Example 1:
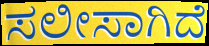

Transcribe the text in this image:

ಸಲೀಸಾಗಿದೆ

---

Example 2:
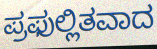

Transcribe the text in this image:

ಪ್ರಫುಲ್ಲಿತವಾದ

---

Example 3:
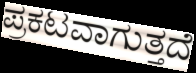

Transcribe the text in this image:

ಪ್ರಕಟವಾಗುತ್ತದೆ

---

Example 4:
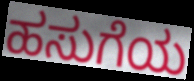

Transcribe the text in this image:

ಹಸುಗೆಯ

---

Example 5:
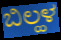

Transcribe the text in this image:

ಬಿಲ್ಹಳ